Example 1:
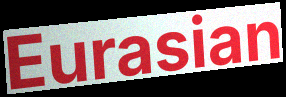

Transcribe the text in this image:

Eurasian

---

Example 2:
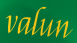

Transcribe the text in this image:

valun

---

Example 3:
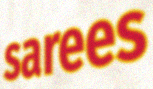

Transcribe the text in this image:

sarees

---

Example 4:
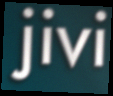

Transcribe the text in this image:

jivi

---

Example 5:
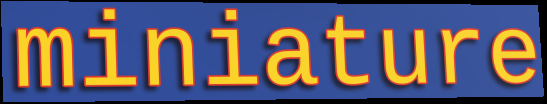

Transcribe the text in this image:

miniature